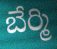
బేర్మి